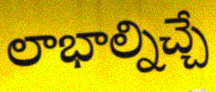
లాభాల్నిచ్చే